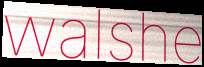
walshe